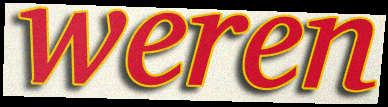
weren